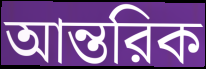
আন্তরিক